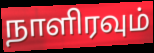
நாளிரவும்